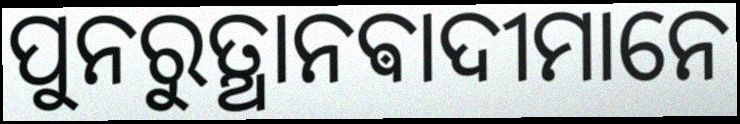
ପୁନରୁତ୍ଥାନଵାଦୀମାନେ